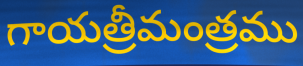
గాయత్రీమంత్రము